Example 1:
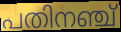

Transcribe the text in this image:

പതിനഞ്ച്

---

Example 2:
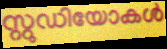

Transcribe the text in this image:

സ്റ്റുഡിയോകൾ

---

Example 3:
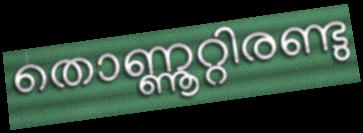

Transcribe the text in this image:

തൊണ്ണൂറ്റിരണ്ടു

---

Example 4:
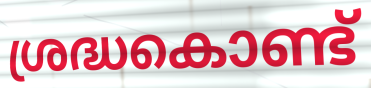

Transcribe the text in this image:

ശ്രദ്ധകൊണ്ട്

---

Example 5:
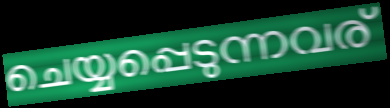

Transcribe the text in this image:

ചെയ്യപ്പെടുന്നവര്